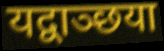
यद्वाञ्छया